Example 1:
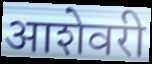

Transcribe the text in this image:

आशेवरी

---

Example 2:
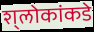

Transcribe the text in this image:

श्लोकांकडे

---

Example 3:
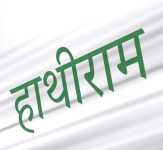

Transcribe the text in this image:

हाथीराम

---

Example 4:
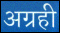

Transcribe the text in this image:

अग्रही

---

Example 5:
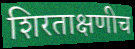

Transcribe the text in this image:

शिरताक्षणीच